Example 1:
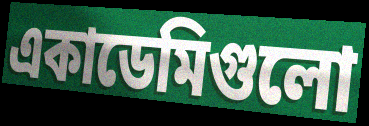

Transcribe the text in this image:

একাডেমিগুলো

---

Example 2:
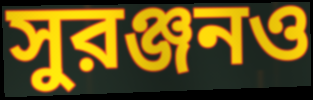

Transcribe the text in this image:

সুরঞ্জনও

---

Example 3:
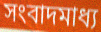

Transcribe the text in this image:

সংবাদমাধ্য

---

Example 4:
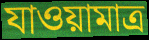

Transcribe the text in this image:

যাওয়ামাত্র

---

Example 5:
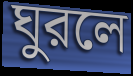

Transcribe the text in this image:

ঘুরলে